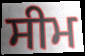
ਸੀਮ